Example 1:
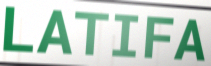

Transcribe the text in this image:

LATIFA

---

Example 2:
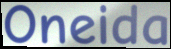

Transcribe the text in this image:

Oneida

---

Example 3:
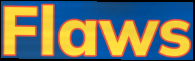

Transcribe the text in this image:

Flaws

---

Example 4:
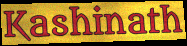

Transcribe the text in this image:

Kashinath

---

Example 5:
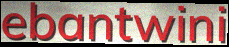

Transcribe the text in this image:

ebantwini